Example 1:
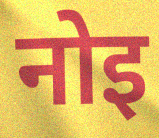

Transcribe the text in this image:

नोइ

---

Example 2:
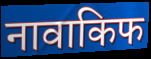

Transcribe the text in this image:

नावाकिफ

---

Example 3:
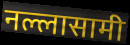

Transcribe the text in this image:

नल्लासामी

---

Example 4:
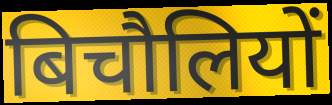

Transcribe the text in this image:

बिचौलियों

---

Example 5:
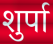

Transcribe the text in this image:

शुर्पा